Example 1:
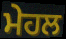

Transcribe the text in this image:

ਮੇਹਲ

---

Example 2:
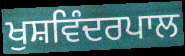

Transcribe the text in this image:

ਖੁਸ਼ਵਿੰਦਰਪਾਲ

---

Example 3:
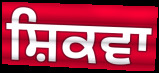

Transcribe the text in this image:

ਸ਼ਿਕਵਾ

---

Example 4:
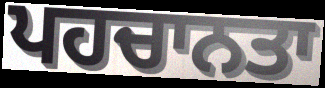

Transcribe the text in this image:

ਪਹਚਾਨਤਾ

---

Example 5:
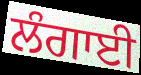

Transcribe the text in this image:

ਲੰਗਾਈ